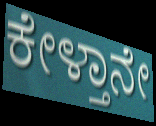
ಕೇಳ್ತಾನೇ